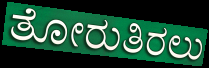
ತೋರುತಿರಲು